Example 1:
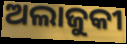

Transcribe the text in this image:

ଅଲାଜୁକୀ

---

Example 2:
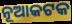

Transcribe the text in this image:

ନୂଆକଟକ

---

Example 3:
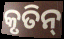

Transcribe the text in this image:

କୃତିନ୍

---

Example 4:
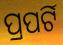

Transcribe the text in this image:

ପ୍ରପର୍ଟି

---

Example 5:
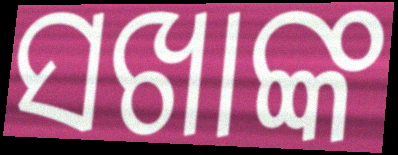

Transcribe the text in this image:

ସଖାଙ୍କ